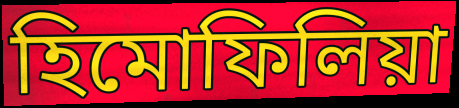
হিমোফিলিয়া